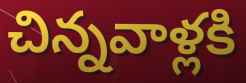
చిన్నవాళ్లకి